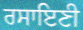
ਰਸਾਇਣੀ